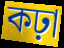
কঢ়া